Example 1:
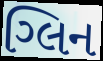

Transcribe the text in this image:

ગ્લિન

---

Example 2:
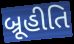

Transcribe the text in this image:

બ્રૂહીતિ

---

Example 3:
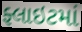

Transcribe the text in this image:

ફ્લાઇટમાં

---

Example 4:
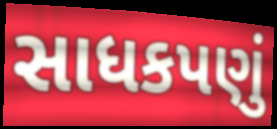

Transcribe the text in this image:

સાધકપણું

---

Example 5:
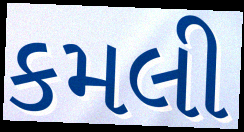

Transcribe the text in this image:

કમલી